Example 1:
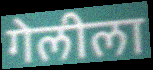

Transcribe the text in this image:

गेलीला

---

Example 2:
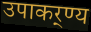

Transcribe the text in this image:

उपाकर्ण्य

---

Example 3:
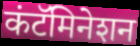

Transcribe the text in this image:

कंटॅमिनेशन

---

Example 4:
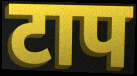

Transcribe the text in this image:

टाप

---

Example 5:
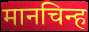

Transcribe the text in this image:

मानचिन्ह